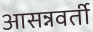
आसन्नवर्ती